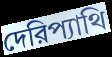
দেরিপ্যাথি